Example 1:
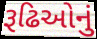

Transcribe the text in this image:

રૂઢિઓનું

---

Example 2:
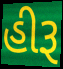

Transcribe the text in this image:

હીરૂ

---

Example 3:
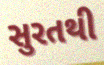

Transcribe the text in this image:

સુરતથી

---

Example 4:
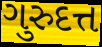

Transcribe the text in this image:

ગુરુદત્ત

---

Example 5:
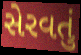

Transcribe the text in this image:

સેરવતું